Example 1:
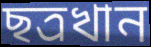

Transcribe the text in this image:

ছত্রখান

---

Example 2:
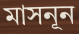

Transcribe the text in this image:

মাসনূন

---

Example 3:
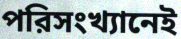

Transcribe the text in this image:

পরিসংখ্যানেই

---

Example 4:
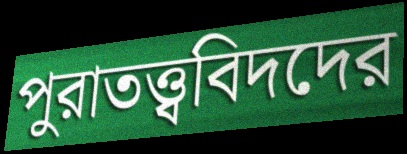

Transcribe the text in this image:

পুরাতত্ত্ববিদদের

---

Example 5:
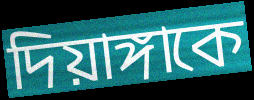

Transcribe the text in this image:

দিয়াঙ্গাকে